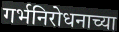
गर्भनिरोधनाच्या